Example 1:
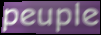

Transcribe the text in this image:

peuple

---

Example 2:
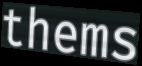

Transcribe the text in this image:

thems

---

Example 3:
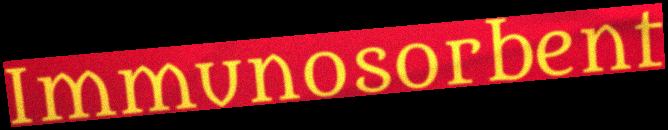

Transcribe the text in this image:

Immunosorbent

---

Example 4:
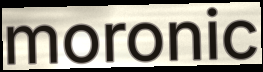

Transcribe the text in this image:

moronic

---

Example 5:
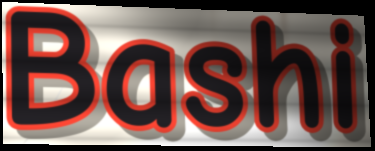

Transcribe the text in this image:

Bashi